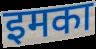
इमका